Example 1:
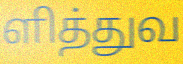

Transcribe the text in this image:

ளித்துவ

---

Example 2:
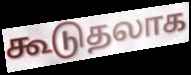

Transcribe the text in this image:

கூடுதலாக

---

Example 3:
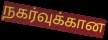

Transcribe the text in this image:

நகர்வுக்கான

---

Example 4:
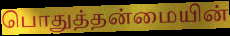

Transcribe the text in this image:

பொதுத்தன்மையின்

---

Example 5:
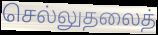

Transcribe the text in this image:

செல்லுதலைத்